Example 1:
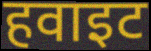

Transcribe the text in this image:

हवाइट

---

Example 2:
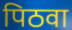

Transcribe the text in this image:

पिठवा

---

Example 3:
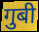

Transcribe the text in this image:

गुबी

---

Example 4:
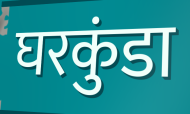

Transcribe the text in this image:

घरकुंडा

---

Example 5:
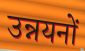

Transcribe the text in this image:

उन्नयनों